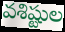
వశిష్టుల